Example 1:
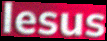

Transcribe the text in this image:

Iesus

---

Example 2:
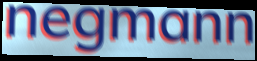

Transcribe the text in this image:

negmann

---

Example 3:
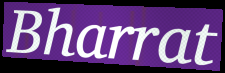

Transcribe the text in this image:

Bharrat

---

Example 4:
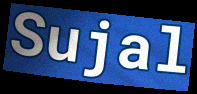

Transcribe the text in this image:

Sujal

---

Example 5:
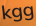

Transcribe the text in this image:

kgg